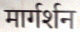
मार्गर्शन